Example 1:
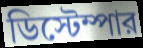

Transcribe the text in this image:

ডিস্টেম্পার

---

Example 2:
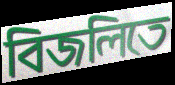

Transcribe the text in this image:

বিজলিতে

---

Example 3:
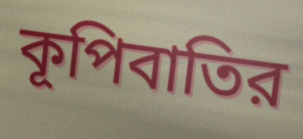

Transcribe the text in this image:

কূপিবাতির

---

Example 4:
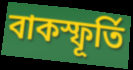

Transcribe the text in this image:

বাকস্ফূর্তি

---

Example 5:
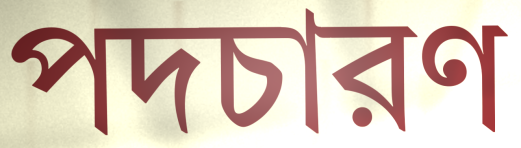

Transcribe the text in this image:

পদচারণ